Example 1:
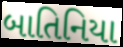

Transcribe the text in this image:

બાતિનિયા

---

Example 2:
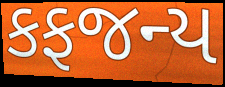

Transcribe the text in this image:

કફજન્ય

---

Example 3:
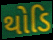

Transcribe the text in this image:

થોડિ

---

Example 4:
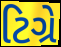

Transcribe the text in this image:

ટિગ્રે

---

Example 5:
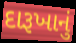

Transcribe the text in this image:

દારૂખાનું